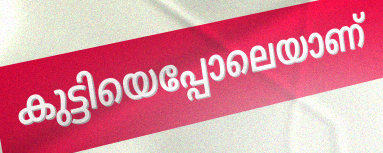
കുട്ടിയെപ്പോലെയാണ്